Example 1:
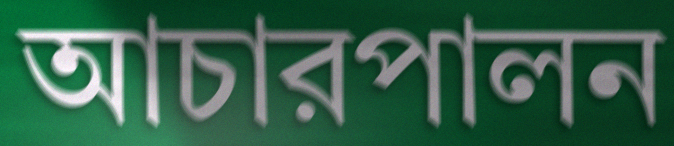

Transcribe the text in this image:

আচারপালন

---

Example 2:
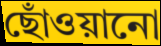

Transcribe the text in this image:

ছোঁওয়ানো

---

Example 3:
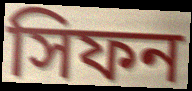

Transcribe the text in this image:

সিফন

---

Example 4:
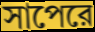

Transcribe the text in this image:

সাপেরে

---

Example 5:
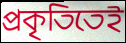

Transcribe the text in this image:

প্রকৃতিতেই